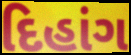
દિહાંગ